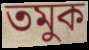
তমুক